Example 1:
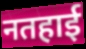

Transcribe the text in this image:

नतहाई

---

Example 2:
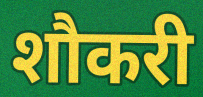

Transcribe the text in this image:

शौकरी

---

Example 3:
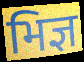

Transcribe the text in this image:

भिज्ञ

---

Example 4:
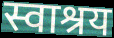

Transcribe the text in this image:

स्वाश्रय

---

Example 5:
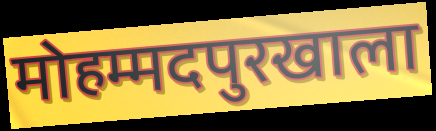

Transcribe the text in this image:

मोहम्मदपुरखाला